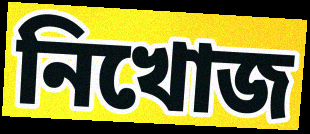
নিখোজ